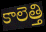
కాలెత్తి